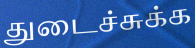
துடைச்சுக்க